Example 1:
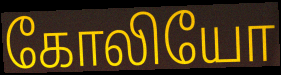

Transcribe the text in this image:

கோலியோ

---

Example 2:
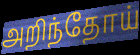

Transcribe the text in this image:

அறிந்தோய்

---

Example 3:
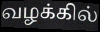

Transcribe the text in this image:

வழக்கில்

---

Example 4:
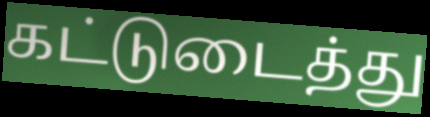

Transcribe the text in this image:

கட்டுடைத்து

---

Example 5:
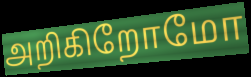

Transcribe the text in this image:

அறிகிறோமோ